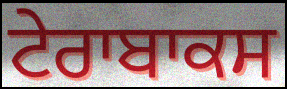
ਟੇਰਾਬਾਕਸ